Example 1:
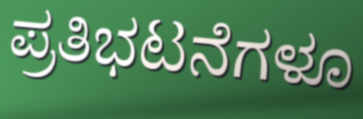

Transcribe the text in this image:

ಪ್ರತಿಭಟನೆಗಳೂ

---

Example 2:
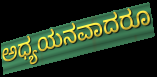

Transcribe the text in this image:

ಅಧ್ಯಯನವಾದರೂ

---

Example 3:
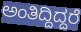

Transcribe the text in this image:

ಅಂತಿದ್ದಿದ್ದರೆ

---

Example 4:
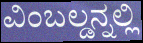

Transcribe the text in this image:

ವಿಂಬಲ್ಡನ್ನಲ್ಲಿ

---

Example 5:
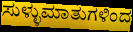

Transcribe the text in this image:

ಸುಳ್ಳುಮಾತುಗಳಿಂದ